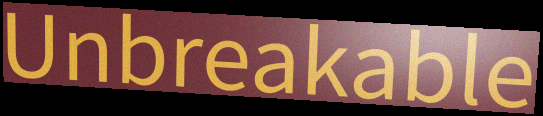
Unbreakable